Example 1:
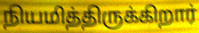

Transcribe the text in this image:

நியமித்திருக்கிறார்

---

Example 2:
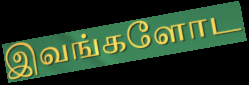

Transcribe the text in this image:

இவங்களோட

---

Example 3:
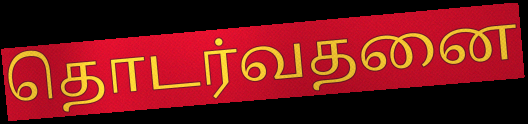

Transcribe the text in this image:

தொடர்வதனை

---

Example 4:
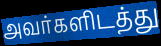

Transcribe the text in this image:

அவர்களிடத்து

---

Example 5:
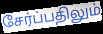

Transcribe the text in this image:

சேர்ப்பதிலும்